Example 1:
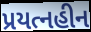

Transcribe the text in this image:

પ્રયત્નહીન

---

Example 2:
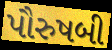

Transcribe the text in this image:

પૌરુષબી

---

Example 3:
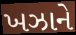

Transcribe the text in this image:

ખઝાને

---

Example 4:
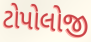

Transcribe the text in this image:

ટોપોલોજી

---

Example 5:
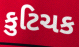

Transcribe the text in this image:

કુટિચક